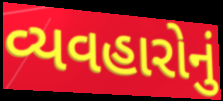
વ્યવહારોનું